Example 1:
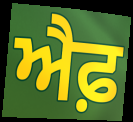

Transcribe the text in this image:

ਐਫ਼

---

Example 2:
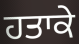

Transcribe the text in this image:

ਹਤਾਕੇ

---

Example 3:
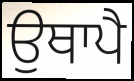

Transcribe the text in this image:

ਉਥਾਪੈ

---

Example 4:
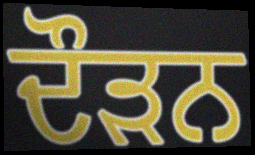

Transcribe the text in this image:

ਦੌਡ਼ਨ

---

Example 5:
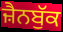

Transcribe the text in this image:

ਜ਼ੈਨਬੁੱਕ